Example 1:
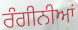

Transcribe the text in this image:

ਰੰਗੀਨੀਆਂ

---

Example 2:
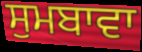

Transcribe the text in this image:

ਸੁਮਬਾਵਾ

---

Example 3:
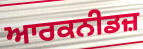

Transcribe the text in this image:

ਆਰਕਨੀਡਜ਼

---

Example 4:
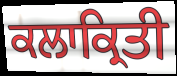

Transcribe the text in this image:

ਕਲਾਕ੍ਰਿਤੀ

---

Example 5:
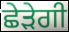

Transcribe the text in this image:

ਛੇੜੇਗੀ